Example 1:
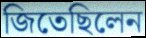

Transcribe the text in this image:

জিতেছিলেন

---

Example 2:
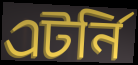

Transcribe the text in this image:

এটর্নি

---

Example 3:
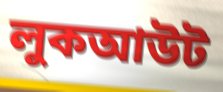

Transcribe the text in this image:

লুকআউট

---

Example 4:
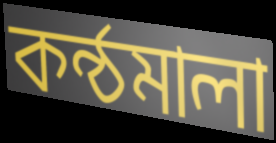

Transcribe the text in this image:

কন্ঠমালা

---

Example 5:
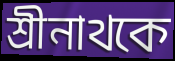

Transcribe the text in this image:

শ্রীনাথকে